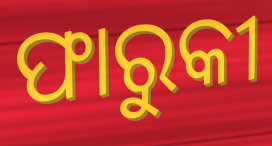
ଫାରୁକୀ